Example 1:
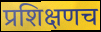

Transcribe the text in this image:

प्रशिक्षणच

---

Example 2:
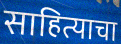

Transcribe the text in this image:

साहित्याचा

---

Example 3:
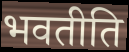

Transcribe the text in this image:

भवतीति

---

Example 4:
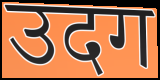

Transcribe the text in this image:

उदग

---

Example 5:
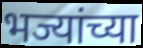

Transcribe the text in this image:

भज्यांच्या